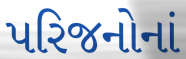
પરિજનોનાં